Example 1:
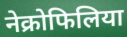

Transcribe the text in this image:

नेक्रोफिलिया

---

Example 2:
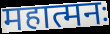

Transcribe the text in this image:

महात्मनः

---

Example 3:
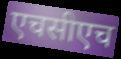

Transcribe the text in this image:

एचसीएच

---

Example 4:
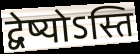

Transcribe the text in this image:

द्वेष्योऽस्ति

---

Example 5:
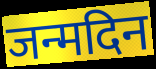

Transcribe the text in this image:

जन्‍मदिन